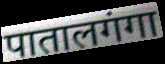
पातालगंगा